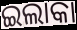
ଇଲାକା